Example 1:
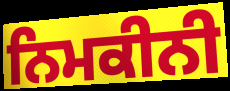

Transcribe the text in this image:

ਨਿਮਕੀਨੀ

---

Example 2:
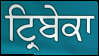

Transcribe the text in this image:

ਟ੍ਰਿਬੇਕਾ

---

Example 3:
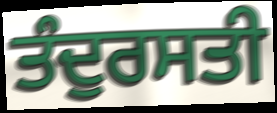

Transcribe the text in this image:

ਤੰਦੁਰਸਤੀ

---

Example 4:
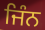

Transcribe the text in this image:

ਜਿੰਨ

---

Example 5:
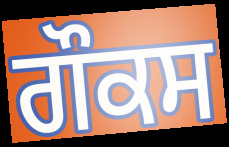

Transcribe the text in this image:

ਗੌਕਸ